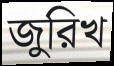
জুরিখ